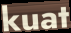
kuat